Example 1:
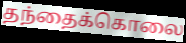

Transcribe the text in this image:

தந்தைக்கொலை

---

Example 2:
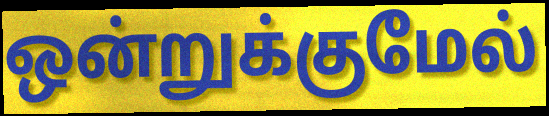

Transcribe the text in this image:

ஒன்றுக்குமேல்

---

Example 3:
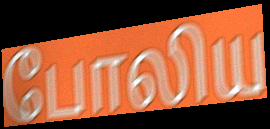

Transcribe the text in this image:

போலிய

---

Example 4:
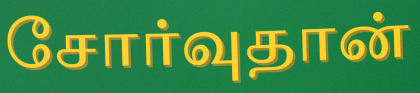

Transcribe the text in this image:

சோர்வுதான்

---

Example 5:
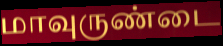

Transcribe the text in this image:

மாவுருண்டை